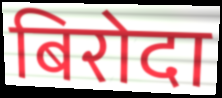
बिरोदा